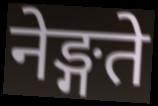
नेङ्गते